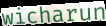
wicharun